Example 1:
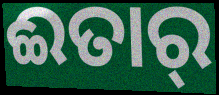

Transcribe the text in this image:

ଈତାର୍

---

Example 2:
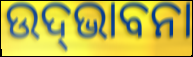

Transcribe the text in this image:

ଉଦ୍‍ଭାବନା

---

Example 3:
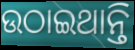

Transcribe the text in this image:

ଉଠାଇଥାନ୍ତି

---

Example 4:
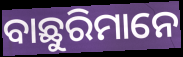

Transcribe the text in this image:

ବାଛୁରିମାନେ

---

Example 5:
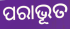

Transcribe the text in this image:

ପରାଭୂତ